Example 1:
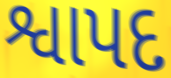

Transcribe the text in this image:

શ્વાપદ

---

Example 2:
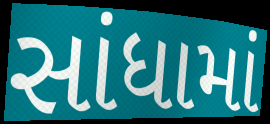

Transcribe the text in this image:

સાંધામાં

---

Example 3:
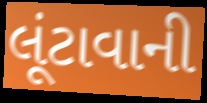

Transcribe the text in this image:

લૂંટાવાની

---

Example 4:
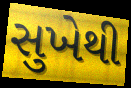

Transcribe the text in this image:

સુખેથી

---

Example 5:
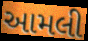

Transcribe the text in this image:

આમલી